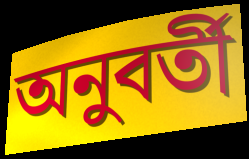
অনুবর্তী